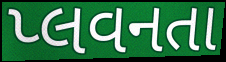
પ્લવનતા